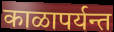
काळापर्यन्त